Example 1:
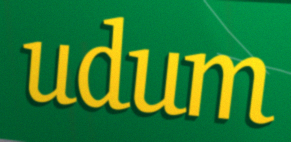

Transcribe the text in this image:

udum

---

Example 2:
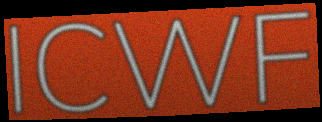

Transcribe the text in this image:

ICWF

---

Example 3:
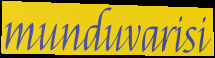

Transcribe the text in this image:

munduvarisi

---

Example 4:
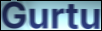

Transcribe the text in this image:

Gurtu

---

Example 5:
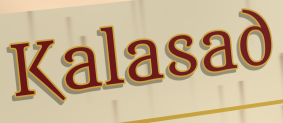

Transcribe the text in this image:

Kalasad